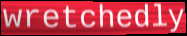
wretchedly